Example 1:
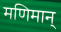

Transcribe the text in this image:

मणिमान्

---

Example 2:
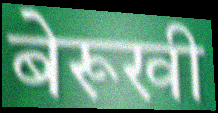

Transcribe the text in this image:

बेरूखी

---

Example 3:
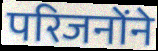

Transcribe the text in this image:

परिजनोंने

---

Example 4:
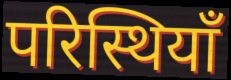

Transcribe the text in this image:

परिस्थियाँ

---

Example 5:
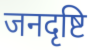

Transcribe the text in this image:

जनदृष्टि